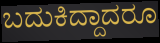
ಬದುಕಿದ್ದಾದರೂ